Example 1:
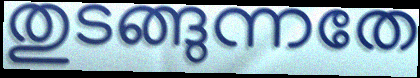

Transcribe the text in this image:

തുടങ്ങുന്നതേ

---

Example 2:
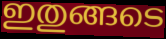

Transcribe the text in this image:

ഇതുങ്ങടെ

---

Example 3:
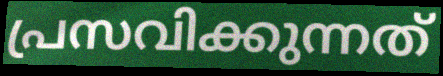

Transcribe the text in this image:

പ്രസവിക്കുന്നത്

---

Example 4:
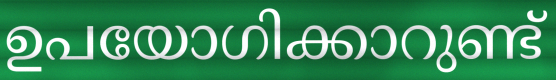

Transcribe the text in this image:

ഉപയോഗിക്കാറുണ്ട്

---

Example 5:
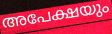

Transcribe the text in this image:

അപേക്ഷയും